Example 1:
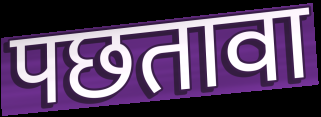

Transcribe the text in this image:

पछतावा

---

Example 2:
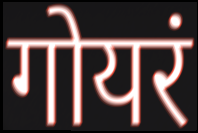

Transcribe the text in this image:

गोयरं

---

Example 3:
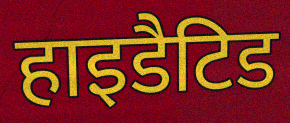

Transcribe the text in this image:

हाइडैटिड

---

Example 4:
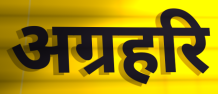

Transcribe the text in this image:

अग्रहरि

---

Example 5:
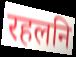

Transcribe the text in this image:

रहलनि